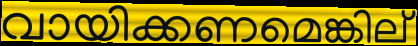
വായിക്കണമെങ്കില്